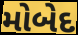
મોબેદ